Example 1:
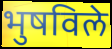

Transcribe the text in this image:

भुषविले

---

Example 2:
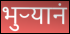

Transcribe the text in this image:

भुऱ्यानं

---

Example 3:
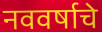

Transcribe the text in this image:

नववर्षाचे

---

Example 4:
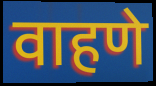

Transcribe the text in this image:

वाहणे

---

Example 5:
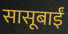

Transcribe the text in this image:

सासूबाईं